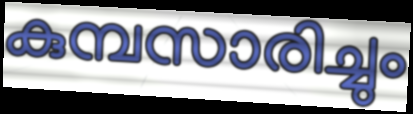
കുമ്പസാരിച്ചും